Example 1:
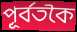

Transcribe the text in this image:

পূৰ্বতকৈ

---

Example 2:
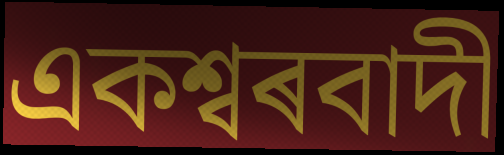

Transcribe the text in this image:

একশ্বৰবাদী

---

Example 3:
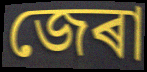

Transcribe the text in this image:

জেৰা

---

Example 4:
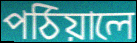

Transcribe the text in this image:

পঠিয়ালে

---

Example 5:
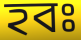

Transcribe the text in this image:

হবঃ